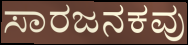
ಸಾರಜನಕವು